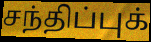
சந்திப்புக்